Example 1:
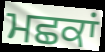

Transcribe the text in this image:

ਮਛਕਾਂ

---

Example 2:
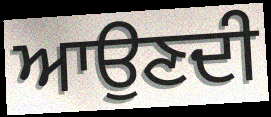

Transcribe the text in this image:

ਆਉਣਦੀ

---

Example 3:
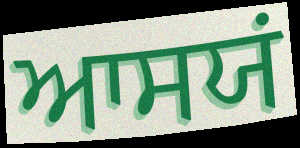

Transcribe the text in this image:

ਆਸਯਂ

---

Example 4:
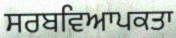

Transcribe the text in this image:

ਸਰਬਵਿਆਪਕਤਾ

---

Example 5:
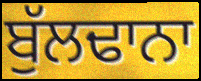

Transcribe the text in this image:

ਬੁੱਲਢਾਨਾ